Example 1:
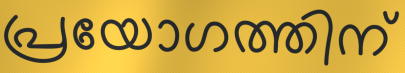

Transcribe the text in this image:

പ്രയോഗത്തിന്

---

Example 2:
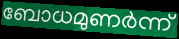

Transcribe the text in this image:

ബോധമുണർന്ന്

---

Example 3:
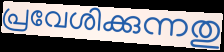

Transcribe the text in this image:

പ്രവേശിക്കുന്നതു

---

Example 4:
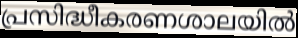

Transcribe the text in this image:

പ്രസിദ്ധീകരണശാലയിൽ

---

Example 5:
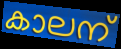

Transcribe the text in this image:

കാലന്